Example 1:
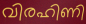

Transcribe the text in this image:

വിരഹിണി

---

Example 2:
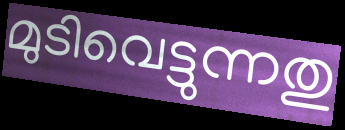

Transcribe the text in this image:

മുടിവെട്ടുന്നതു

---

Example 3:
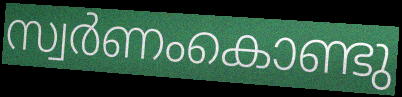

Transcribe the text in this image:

സ്വർണംകൊണ്ടു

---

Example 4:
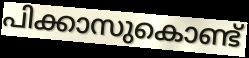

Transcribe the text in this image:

പിക്കാസുകൊണ്ട്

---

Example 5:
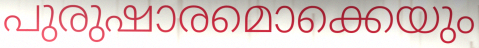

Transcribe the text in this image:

പുരുഷാരമൊക്കെയും